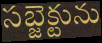
సబ్జెక్టును